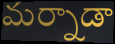
మర్నాడా